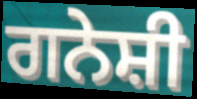
ਗਨੇਸ਼ੀ